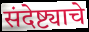
संदेष्ट्याचे